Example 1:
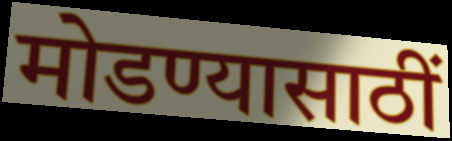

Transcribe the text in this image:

मोडण्यासाठीं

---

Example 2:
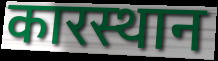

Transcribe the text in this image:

कारस्थान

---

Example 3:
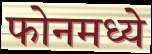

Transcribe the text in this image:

फोनमध्ये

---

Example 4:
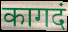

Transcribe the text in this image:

कागदं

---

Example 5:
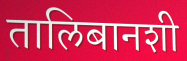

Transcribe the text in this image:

तालिबानशी